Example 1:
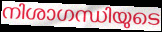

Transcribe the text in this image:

നിശാഗന്ധിയുടെ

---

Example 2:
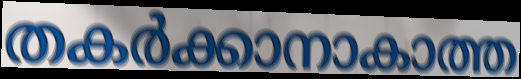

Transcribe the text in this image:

തകർക്കാനാകാത്ത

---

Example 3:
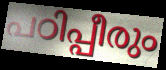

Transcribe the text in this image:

പഠിപ്പീരും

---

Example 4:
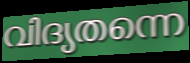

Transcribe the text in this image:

വിദ്യതന്നെ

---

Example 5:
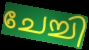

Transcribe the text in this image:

ചേച്ചി